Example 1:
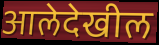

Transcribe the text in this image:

आलेदेखील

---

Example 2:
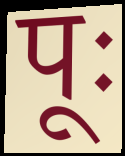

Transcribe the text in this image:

पूः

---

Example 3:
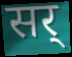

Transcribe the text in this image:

सर्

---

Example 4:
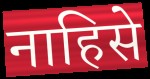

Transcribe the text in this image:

नाहिसे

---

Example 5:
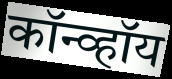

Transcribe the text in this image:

कॉन्व्हॉय